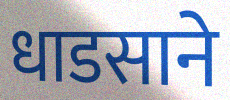
धाडसाने